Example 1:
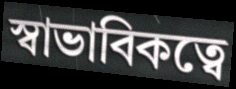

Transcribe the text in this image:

স্বাভাবিকত্বে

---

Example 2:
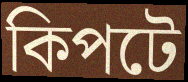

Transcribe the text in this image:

কিপটে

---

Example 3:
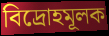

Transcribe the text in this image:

বিদ্রোহমূলক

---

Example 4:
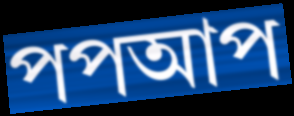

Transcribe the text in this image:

পপআপ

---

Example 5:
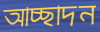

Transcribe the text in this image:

আচ্ছাদন